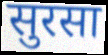
सुरसा